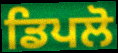
ਡਿਪਲੋ